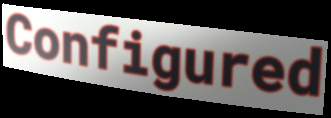
Configured